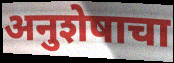
अनुशेषाचा